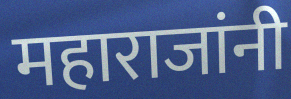
महाराजांनी